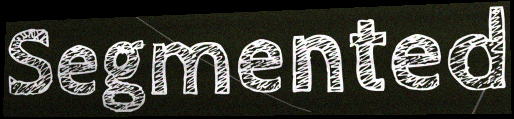
Segmented